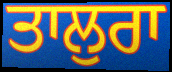
ਤਾਲੁਰਾ